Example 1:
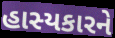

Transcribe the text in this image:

હાસ્યકારને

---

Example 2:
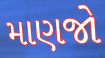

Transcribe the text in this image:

માણજો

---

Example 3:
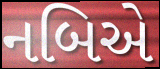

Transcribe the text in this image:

નબિએ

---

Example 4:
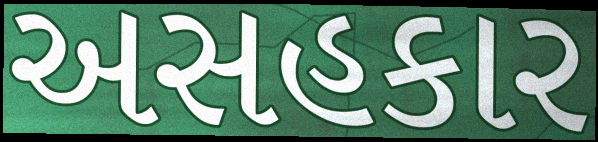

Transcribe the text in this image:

અસહકાર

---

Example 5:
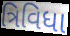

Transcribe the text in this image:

ત્રિવિધા